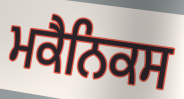
ਮਕੈਨਿਕਸ